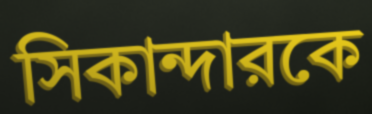
সিকান্দারকে